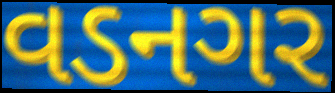
વડનગર